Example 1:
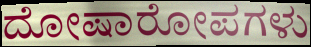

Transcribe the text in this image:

ದೋಷಾರೋಪಗಳು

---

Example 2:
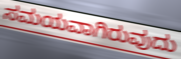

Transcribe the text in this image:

ಸಮಯವಾಗಿರುವುದು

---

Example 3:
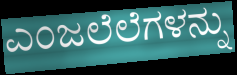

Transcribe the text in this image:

ಎಂಜಲೆಲೆಗಳನ್ನು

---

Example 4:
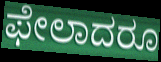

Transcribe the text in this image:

ಫೇಲಾದರೂ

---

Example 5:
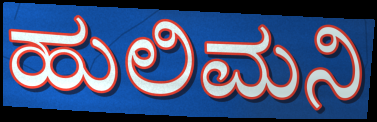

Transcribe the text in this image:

ಹುಲಿಮನಿ